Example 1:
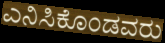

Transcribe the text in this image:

ಎನಿಸಿಕೊಂಡವರು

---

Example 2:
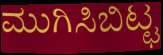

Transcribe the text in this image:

ಮುಗಿಸಿಬಿಟ್ಟ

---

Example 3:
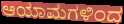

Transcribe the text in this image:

ಆಯಾಮಗಳಿಂದ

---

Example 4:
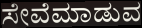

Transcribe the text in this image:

ಸೇವೆಮಾಡುವ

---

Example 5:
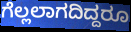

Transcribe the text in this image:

ಗೆಲ್ಲಲಾಗದಿದ್ದರೂ